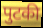
पुटकी